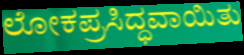
ಲೋಕಪ್ರಸಿದ್ಧವಾಯಿತು